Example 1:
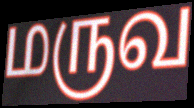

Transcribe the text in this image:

மருவ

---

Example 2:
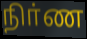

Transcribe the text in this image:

நிர்ண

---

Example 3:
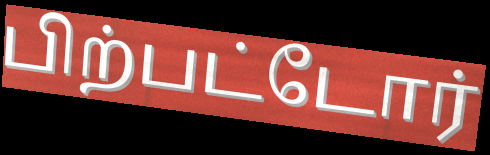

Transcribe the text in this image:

பிற்பட்டோர்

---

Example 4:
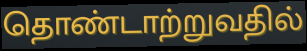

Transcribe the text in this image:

தொண்டாற்றுவதில்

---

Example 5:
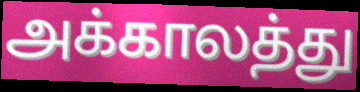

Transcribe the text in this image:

அக்காலத்து